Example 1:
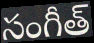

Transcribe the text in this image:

సంగీత్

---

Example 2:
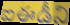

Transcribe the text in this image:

ఐఈడీని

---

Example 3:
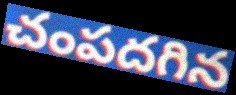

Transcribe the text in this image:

చంపదగిన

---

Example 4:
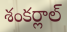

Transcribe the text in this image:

శంకర్లాల్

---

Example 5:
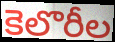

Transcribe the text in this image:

కెలొరీల